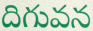
దిగువన